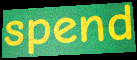
spend